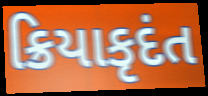
ક્રિયાકૃદંત